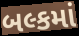
બલ્કમાં